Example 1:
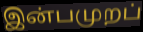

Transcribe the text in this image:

இன்பமுறப்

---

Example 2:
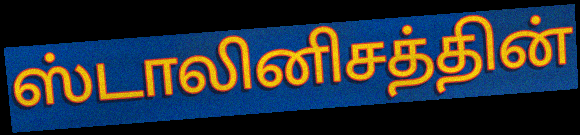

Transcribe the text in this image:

ஸ்டாலினிசத்தின்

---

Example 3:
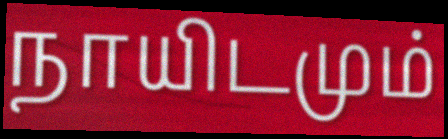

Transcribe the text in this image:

நாயிடமும்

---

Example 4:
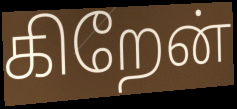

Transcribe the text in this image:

கிறேன்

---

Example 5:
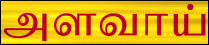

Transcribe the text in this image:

அளவாய்